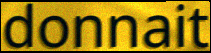
donnait